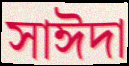
সাঈদা